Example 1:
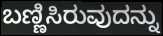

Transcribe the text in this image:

ಬಣ್ಣಿಸಿರುವುದನ್ನು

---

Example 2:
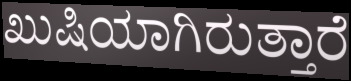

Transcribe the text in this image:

ಖುಷಿಯಾಗಿರುತ್ತಾರೆ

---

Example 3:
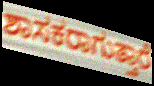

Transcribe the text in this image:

ಶಾಸಕರಾಗುತ್ತಾರೆ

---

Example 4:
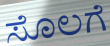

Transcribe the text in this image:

ಸೊಲಗೆ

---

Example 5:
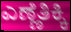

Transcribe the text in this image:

ಎಣ್ಣೆತಿಕ್ಕಿ